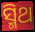
ସ୍ମିଥ